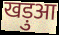
खड़ुआ